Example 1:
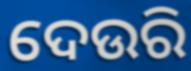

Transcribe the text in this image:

ଦେଉରି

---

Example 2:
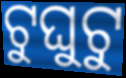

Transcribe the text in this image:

ଟୁଘୁଟୁ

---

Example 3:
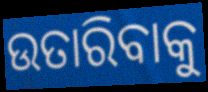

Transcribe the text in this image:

ଉତାରିବାକୁ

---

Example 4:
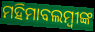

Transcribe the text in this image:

ମହିମାବଲମ୍ବୀଙ୍କ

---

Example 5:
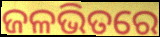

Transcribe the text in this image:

ଜଳଭିତରେ